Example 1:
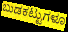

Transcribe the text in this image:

ಬುಡಕಟ್ಟುಗಳೂ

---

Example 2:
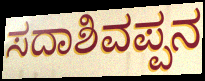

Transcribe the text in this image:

ಸದಾಶಿವಪ್ಪನ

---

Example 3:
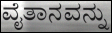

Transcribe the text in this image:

ವೈತಾನವನ್ನು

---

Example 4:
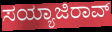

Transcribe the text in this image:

ಸಯ್ಯಾಜಿರಾವ್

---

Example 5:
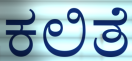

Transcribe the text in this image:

ಕಲಿತೆ